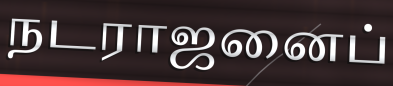
நடராஜனைப்